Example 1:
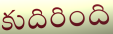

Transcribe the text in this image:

కుదిరింది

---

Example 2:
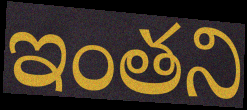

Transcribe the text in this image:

ఇంతని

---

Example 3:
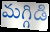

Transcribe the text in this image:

మగ్గిడి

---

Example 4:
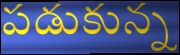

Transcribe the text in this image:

పడుకున్న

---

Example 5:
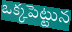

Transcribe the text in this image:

ఒక్కపెట్టున